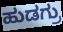
ಹುಡಗ್ರು